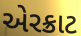
એરક્રાટ